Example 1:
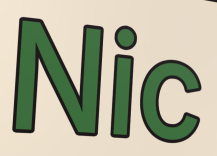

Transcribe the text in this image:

Nic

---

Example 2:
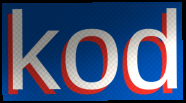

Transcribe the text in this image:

kod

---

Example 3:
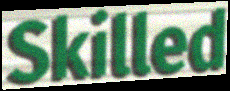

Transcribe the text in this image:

Skilled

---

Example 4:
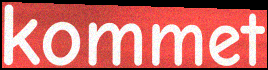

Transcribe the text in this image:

kommet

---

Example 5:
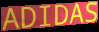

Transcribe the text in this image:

ADIDAS